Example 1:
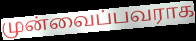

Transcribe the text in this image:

முன்வைப்பவராக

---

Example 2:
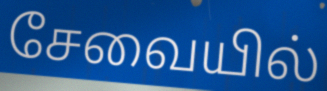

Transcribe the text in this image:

சேவையில்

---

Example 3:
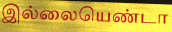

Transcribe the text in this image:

இல்லையெண்டா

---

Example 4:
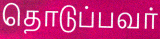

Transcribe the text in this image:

தொடுப்பவர்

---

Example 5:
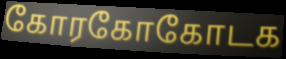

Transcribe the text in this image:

கோரகோகோடக